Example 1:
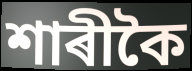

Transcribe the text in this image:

শাৰীকৈ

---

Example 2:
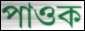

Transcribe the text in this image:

পাওক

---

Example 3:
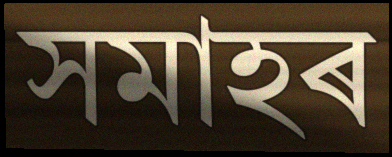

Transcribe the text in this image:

সমাহৰ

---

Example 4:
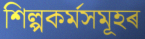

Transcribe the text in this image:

শিল্পকৰ্মসমূহৰ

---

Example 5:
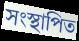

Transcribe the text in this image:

সংস্থাপিত